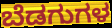
ಬೆಡಗುಗಳ